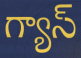
గ్యాస్